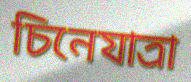
চিনেযাত্ৰা